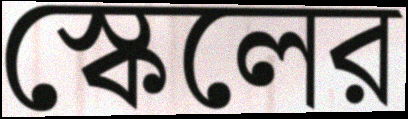
স্কেলের